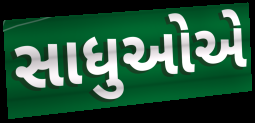
સાધુઓએ